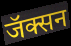
जॅक्सन